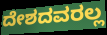
ದೇಶದವರಲ್ಲ